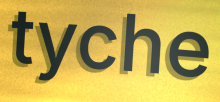
tyche